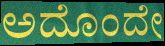
ಅದೊಂದೇ